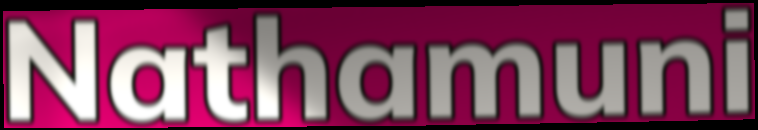
Nathamuni